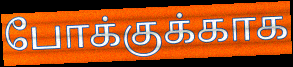
போக்குக்காக